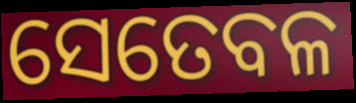
ସେତେବଳ